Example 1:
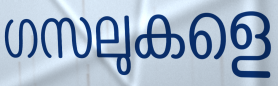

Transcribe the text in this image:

ഗസലുകളെ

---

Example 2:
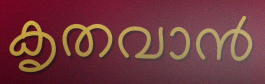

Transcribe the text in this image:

കൃതവാൻ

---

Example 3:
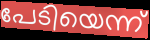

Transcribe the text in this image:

പേടിയെന്ന്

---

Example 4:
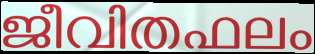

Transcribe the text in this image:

ജീവിതഫലം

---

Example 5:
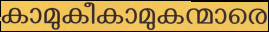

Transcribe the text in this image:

കാമുകീകാമുകന്മാരെ